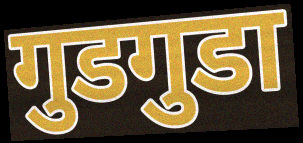
गुडगुडा